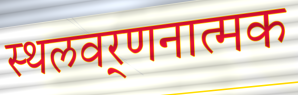
स्थलवर्णनात्मक